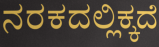
ನರಕದಲ್ಲಿಕ್ಕದೆ